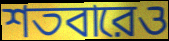
শতবারেও